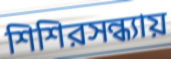
শিশিরসন্ধ্যায়